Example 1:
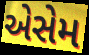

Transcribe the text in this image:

એસેમ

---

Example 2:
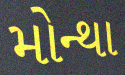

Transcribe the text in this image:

મોન્થા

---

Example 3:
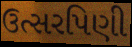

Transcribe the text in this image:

ઉત્સરપિણી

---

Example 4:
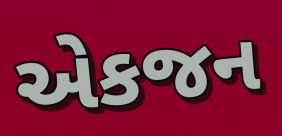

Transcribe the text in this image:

એકજન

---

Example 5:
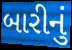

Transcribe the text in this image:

બારીનું